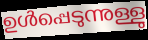
ഉൾപ്പെടുന്നുള്ളു